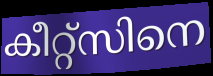
കീറ്റ്സിനെ